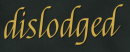
dislodged